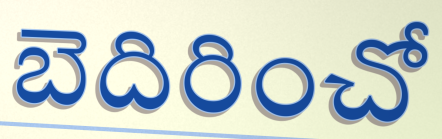
బెదిరించో